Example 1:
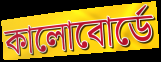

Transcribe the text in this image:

কালোবোর্ডে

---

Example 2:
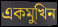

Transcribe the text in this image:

একমুখিন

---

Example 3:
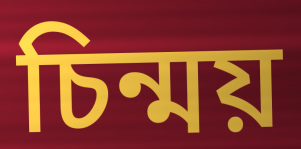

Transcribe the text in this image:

চিন্ময়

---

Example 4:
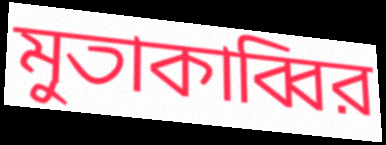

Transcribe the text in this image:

মুতাকাব্বির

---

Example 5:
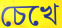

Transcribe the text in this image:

চেখে